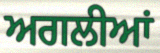
ਅਗਲੀਆਂ